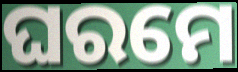
ଘରମେ